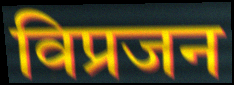
विप्रजन